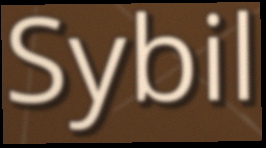
Sybil